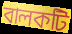
বালকটি